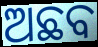
ଅଛବ